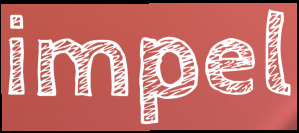
impel